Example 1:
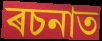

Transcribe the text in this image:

ৰচনাত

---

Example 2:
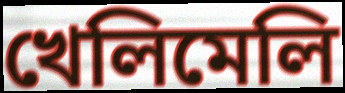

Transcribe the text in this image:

খেলিমেলি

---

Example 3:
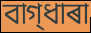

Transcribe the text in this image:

বাগ্‌ধাৰা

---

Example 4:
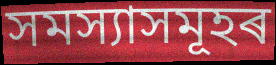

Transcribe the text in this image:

সমস্যাসমূহৰ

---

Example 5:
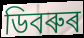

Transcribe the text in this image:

ডিবৰুৰ